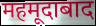
महमूदाबाद